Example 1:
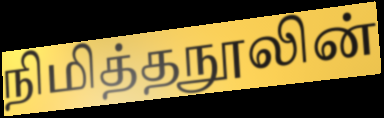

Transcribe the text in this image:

நிமித்தநூலின்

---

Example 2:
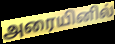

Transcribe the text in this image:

அரையினில்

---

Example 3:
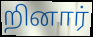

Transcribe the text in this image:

றினார்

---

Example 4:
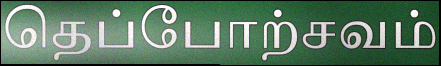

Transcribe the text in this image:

தெப்போற்சவம்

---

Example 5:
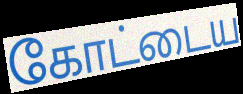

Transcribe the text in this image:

கோட்டைய